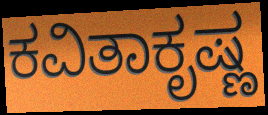
ಕವಿತಾಕೃಷ್ಣ